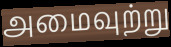
அமைவுற்று